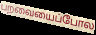
பறவையைப்போல